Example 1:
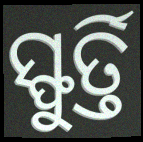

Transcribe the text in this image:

ସ୍ଫୁର୍ତ୍ତି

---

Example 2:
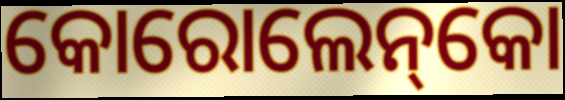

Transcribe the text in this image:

କୋରୋଲେନ୍‌କୋ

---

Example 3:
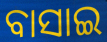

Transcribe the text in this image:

ବାସାଇ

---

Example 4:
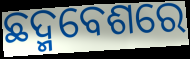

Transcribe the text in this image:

ଛଦ୍ମବେଶରେ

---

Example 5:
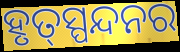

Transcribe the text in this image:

ହୃତ୍‌ସ୍ପନ୍ଦନର